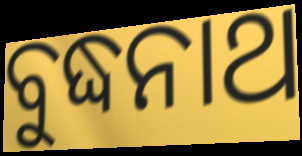
ବୁଦ୍ଧନାଥ